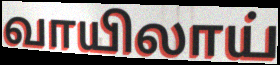
வாயிலாய்